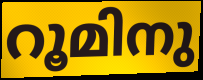
റൂമിനു